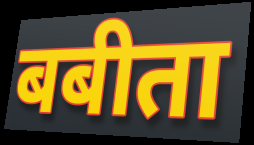
बबीता